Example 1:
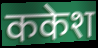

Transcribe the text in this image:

ककेश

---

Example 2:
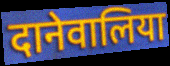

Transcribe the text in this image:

दानेवालिया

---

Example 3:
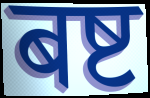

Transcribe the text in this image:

बष्ट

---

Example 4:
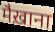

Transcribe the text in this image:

मैख़ाना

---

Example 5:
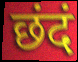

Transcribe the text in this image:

छंदं